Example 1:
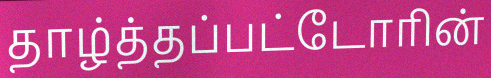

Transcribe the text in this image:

தாழ்த்தப்பட்டோரின்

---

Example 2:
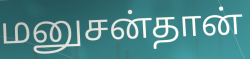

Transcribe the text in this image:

மனுசன்தான்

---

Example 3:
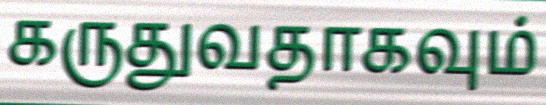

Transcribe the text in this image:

கருதுவதாகவும்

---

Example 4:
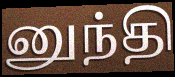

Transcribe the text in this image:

னுந்தி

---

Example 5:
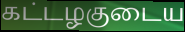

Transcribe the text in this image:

கட்டழகுடைய